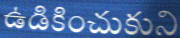
ఉడికించుకుని